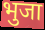
भुजा